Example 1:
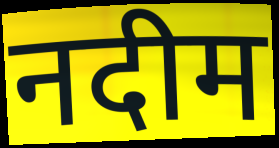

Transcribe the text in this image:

नदीम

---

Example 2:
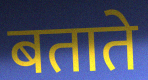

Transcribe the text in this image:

बताते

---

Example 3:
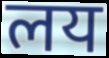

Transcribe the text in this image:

लय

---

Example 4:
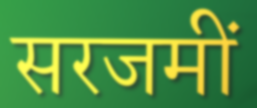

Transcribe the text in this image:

सरजमीं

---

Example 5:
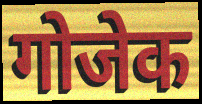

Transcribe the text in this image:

गोजेक